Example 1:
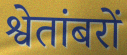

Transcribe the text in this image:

श्वेतांबरों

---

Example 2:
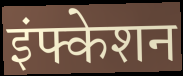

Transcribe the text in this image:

इंफ्केशन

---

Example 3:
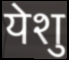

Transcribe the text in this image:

येशु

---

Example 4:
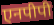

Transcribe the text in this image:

एनपीपी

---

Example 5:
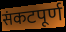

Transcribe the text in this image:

संकटपूर्ण